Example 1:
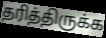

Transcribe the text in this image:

தரித்திருக்க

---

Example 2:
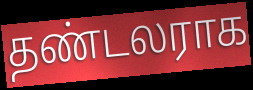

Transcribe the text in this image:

தண்டலராக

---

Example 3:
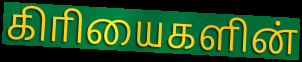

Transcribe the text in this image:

கிரியைகளின்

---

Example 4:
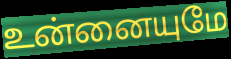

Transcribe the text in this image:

உன்னையுமே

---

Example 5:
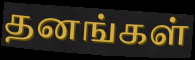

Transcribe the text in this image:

தனங்கள்